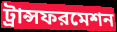
ট্রান্সফরমেশন